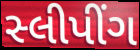
સ્લીપીંગ